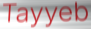
Tayyeb